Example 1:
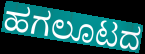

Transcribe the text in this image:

ಹಗಲೂಟದ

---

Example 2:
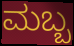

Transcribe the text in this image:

ಮಬ್ಬ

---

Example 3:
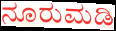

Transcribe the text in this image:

ನೂರುಮಡಿ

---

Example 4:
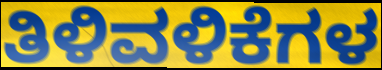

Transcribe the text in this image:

ತಿಳಿವಳಿಕೆಗಳ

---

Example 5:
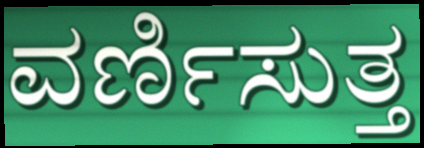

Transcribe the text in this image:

ವರ್ಣಿಸುತ್ತ